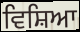
ਵਿਸ਼ਿਆ